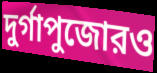
দুর্গাপুজোরও